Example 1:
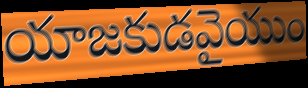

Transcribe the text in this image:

యాజకుడవైయుం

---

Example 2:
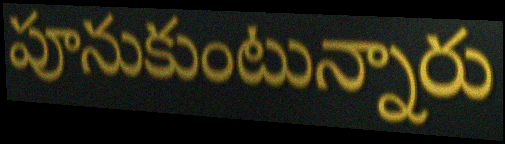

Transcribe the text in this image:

పూనుకుంటున్నారు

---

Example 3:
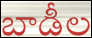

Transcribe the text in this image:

బాడీల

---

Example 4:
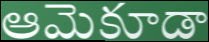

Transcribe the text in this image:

ఆమెకూడా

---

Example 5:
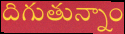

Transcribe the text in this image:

దిగుతున్నాం